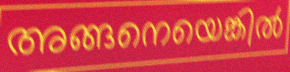
അങ്ങനെയെങ്കിൽ